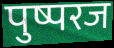
पुष्परज